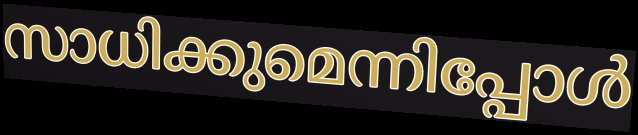
സാധിക്കുമെന്നിപ്പോൾ